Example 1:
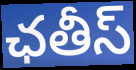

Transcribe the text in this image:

ఛతీస్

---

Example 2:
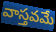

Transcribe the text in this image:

వాస్తవమే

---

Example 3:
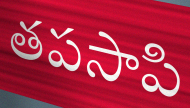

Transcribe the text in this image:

తపసాపి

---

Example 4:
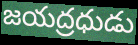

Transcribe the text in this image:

జయద్రధుడు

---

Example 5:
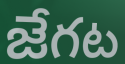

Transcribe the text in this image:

జేగట